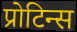
प्रोटिन्स